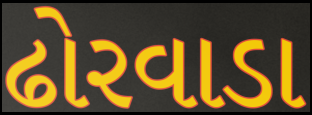
ઢોરવાડા